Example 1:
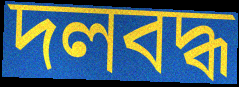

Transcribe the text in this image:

দলবদ্ধ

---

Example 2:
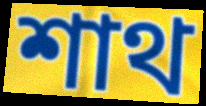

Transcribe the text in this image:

শাথ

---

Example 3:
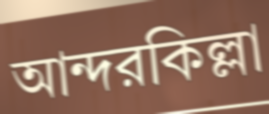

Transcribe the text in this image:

আন্দরকিল্লা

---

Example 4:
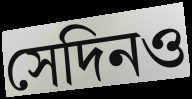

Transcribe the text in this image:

সেদিনও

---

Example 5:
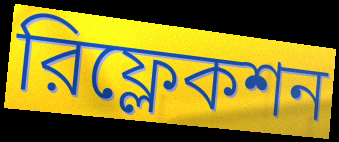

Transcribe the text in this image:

রিফ্লেকশন